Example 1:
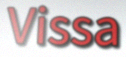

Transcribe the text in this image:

Vissa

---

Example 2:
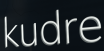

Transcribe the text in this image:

kudre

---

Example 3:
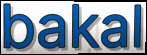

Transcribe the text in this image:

bakal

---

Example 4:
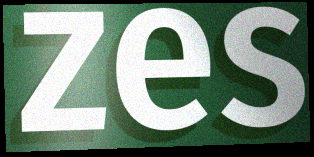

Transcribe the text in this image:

zes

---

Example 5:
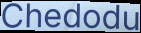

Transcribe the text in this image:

Chedodu